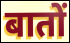
बातों